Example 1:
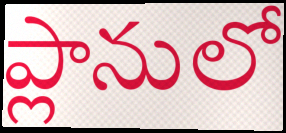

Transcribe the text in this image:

ప్లానులో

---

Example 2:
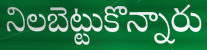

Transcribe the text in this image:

నిలబెట్టుకొన్నారు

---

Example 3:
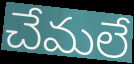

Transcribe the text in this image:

చేమలే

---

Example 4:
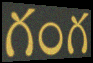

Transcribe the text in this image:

గంగ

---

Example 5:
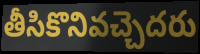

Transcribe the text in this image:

తీసికొనివచ్చెదరు